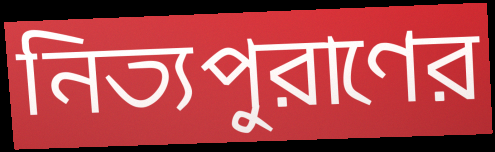
নিত্যপুরাণের